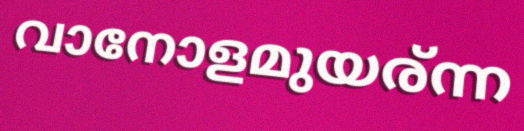
വാനോളമുയര്ന്ന